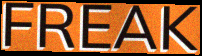
FREAK